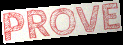
PROVE